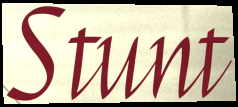
Stunt